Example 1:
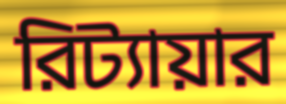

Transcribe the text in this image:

রিট্যায়ার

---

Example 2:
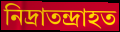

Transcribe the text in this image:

নিদ্রাতন্দ্রাহত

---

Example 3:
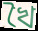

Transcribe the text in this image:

খৈ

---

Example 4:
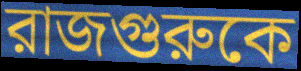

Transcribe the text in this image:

রাজগুরুকে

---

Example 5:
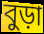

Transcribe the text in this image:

বুড়া